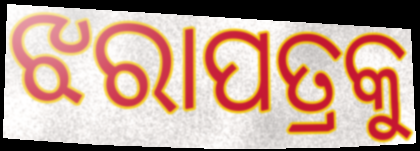
ଝରାପତ୍ରକୁ